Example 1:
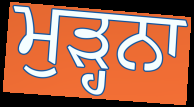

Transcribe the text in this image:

ਮੁੜ੍ਹਨਾ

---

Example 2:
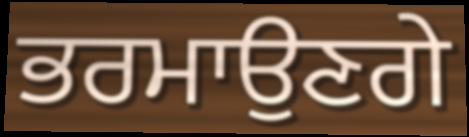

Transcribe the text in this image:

ਭਰਮਾਉਣਗੇ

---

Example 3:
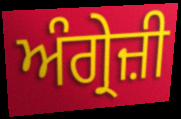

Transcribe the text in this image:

ਅੰਗ੍ਰੇਜ਼ੀ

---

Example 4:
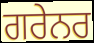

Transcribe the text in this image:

ਗਰੇਨਰ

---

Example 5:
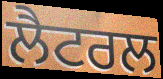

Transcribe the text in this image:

ਲੈਟਰਲ